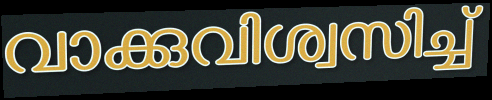
വാക്കുവിശ്വസിച്ച്